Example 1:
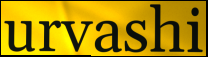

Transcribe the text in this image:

urvashi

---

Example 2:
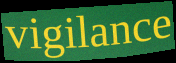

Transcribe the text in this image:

vigilance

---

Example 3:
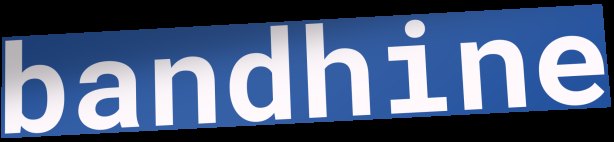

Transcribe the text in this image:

bandhine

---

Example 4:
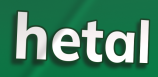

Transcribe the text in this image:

hetal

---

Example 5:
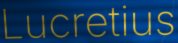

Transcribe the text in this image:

Lucretius